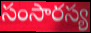
సంసారస్య